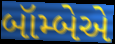
બૉમ્બેએ